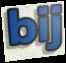
bij